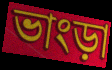
ভাংড়া